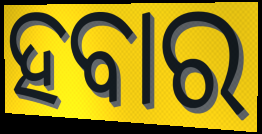
ହବାର